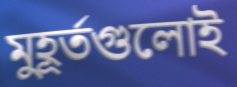
মুহূর্তগুলোই